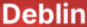
Deblin